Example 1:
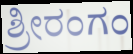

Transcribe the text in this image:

ಶ್ರೀರಂಗಂ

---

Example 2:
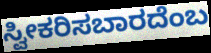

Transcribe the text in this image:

ಸ್ವೀಕರಿಸಬಾರದೆಂಬ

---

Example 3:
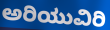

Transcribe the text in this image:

ಅರಿಯುವಿರಿ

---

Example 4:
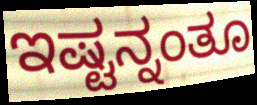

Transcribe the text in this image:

ಇಷ್ಟನ್ನಂತೂ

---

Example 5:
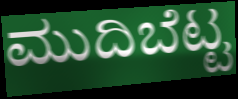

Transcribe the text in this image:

ಮುದಿಬೆಟ್ಟ